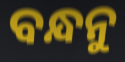
ବନ୍ଧନୁ